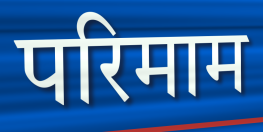
परिमाम